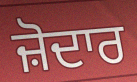
ਜ਼ੋਦਾਰ